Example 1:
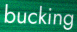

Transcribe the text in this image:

bucking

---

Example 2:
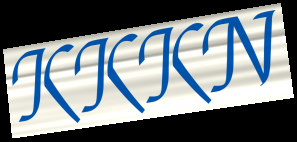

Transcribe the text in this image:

KKKN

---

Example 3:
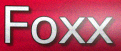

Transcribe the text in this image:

Foxx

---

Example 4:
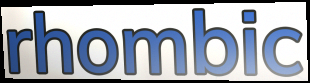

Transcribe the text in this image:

rhombic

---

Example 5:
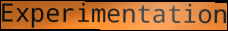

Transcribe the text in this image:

Experimentation